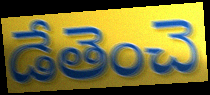
డేతెంచె